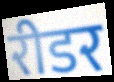
रीडर